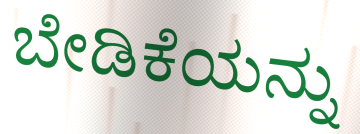
ಬೇಡಿಕೆಯನ್ನು